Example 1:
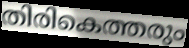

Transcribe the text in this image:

തിരികെത്തരും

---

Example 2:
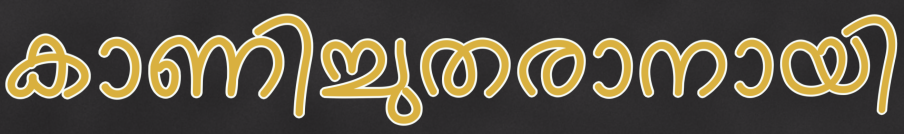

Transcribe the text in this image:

കാണിച്ചുതരാനായി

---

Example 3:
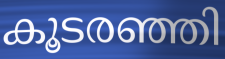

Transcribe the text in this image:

കൂടരഞ്ഞി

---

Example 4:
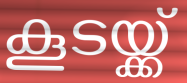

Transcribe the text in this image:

കൂടയ്ക്ക്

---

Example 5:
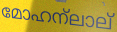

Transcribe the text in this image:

മോഹന്ലാല്